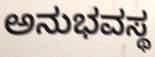
ಅನುಭವಸ್ಥ